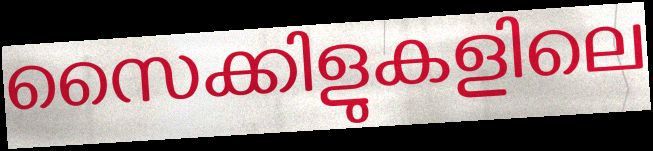
സൈക്കിളുകളിലെ